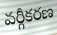
వర్గీకరణ